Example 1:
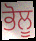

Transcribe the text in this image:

ਭੋਲੂ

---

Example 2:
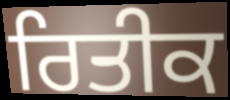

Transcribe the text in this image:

ਰਿਤੀਕ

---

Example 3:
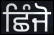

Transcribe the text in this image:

ਛਿੰਜੋ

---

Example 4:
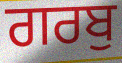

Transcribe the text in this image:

ਗਰਬੁ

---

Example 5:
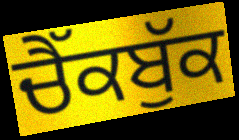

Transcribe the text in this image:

ਚੈੱਕਬੁੱਕ